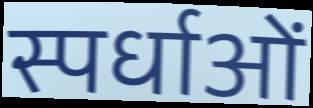
स्पर्धाओं